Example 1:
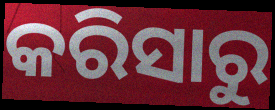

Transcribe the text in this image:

କରିସାରୁ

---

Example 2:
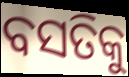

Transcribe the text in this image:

ବସତିକୁ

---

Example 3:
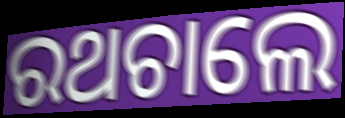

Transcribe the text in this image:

ରଥଚାଲେ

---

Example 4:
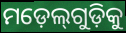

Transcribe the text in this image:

ମଡ଼େଲ୍‌ଗୁଡ଼ିକୁ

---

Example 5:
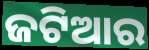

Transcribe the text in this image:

ଜଟିଆର